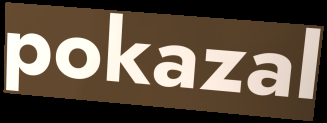
pokazal